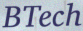
BTech